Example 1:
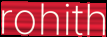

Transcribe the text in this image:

rohith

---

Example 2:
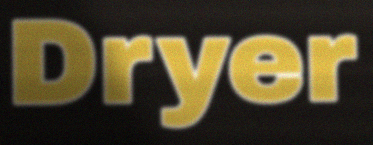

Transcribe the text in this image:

Dryer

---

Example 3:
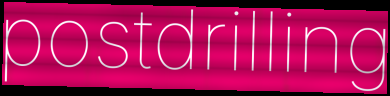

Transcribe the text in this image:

postdrilling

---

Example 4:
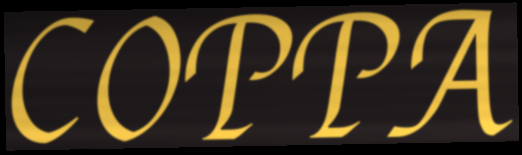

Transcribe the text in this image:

COPPA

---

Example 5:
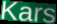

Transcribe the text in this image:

Kars